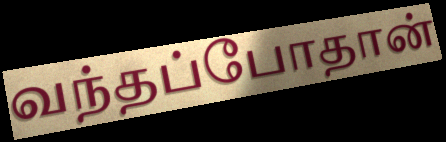
வந்தப்போதான்